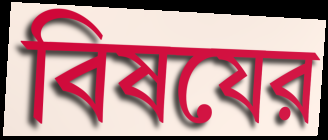
বিষযের